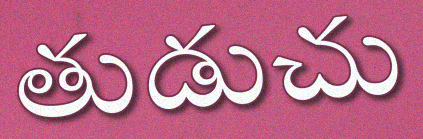
తుడుచు